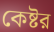
কেষ্টর